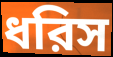
ধরিস